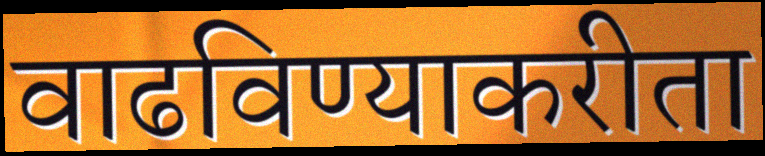
वाढविण्याकरीता